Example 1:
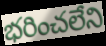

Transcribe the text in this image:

భరించలేని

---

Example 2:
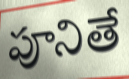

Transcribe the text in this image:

పూనితే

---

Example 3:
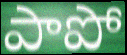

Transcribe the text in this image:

పాపో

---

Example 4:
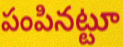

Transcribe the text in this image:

పంపినట్టూ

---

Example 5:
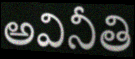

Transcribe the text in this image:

అవినీతి